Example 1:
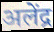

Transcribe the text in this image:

अलेंद्र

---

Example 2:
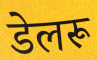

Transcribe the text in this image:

डेलरू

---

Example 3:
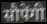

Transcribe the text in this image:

सौपेंगी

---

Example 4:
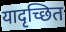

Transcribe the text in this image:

यादृच्छित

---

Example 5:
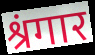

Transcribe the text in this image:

श्रंगार